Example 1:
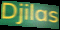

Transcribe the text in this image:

Djilas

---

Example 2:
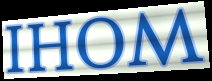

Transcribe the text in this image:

IHOM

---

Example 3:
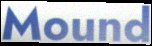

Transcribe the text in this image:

Mound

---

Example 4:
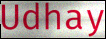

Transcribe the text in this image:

Udhay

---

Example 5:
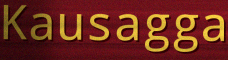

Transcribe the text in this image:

Kausagga